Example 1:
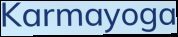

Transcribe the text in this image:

Karmayoga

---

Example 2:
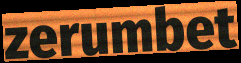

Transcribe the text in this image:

zerumbet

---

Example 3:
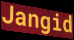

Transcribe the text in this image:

Jangid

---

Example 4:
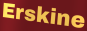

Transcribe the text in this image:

Erskine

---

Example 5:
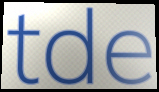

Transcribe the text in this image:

tde